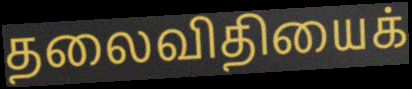
தலைவிதியைக்